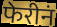
फेरीनं